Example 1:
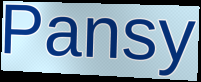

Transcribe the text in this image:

Pansy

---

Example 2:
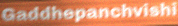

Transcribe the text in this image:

Gaddhepanchvishi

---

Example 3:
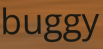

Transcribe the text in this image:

buggy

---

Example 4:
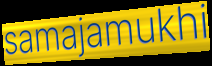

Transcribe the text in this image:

samajamukhi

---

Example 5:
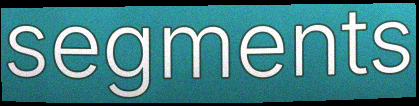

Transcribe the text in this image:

segments